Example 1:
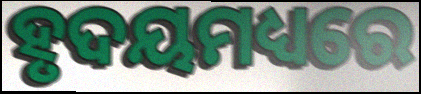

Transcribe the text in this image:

ହୃଦୟମଧ୍ୟରେ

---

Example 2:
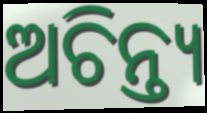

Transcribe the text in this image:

ଅଚିନ୍ତ୍ଯ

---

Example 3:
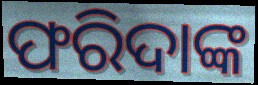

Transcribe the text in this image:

ଫରିଦାଙ୍କ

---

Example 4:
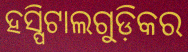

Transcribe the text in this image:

ହସ୍ପିଟାଲଗୁଡ଼ିକର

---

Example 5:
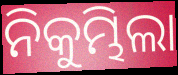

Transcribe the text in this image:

ନିକୁମ୍ଭିଲା